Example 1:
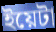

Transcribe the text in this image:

ইয়েটা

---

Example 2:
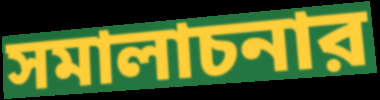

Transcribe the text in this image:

সমালাচনার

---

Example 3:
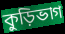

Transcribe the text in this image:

কুড়িভাগ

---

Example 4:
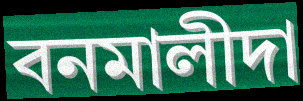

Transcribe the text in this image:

বনমালীদা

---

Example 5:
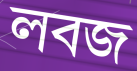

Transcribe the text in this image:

লবজ